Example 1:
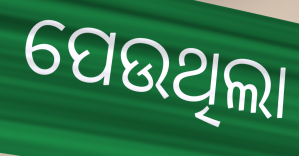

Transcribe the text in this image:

ପେଉଥିଲା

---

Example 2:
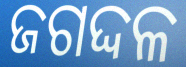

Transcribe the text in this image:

ଜଗଦ୍ଦଳ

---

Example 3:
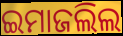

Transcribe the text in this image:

ଇମାଜଲିଲ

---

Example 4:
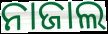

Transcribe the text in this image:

ନାଜାଲ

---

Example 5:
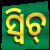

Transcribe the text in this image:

ସ୍ଵିଚ୍